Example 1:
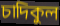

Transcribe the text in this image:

চাদিকুল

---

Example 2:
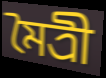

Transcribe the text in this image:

মৈত্ৰী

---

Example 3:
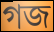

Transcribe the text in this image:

গজ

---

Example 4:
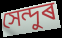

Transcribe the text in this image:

সেন্দুৰ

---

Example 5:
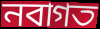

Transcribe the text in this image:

নবাগত